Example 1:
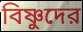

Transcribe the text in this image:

বিষ্ণুদের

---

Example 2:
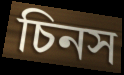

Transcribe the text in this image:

চিনস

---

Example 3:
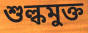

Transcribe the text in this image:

শুল্কমুক্ত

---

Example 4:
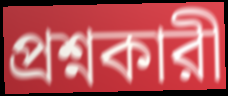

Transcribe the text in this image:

প্রশ্নকারী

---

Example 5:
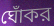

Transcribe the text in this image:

ঘোঁকর